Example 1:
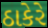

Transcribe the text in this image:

ઠાકેરે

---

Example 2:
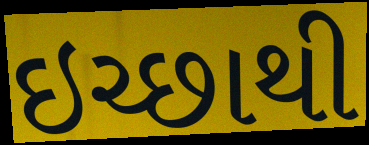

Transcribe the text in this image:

ઇચ્છાથી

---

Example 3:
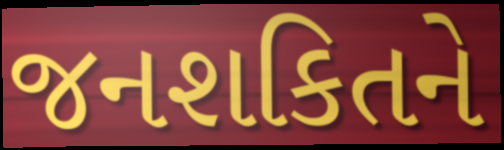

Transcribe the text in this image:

જનશકિતને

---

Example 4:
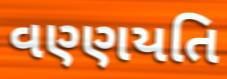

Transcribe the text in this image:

વણ્ણયતિ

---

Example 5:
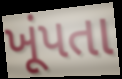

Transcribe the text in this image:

ખૂંપતા